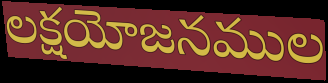
లక్షయోజనముల